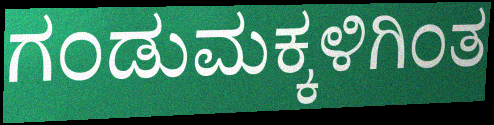
ಗಂಡುಮಕ್ಕಳಿಗಿಂತ